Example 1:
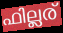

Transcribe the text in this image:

ഫില്ലര്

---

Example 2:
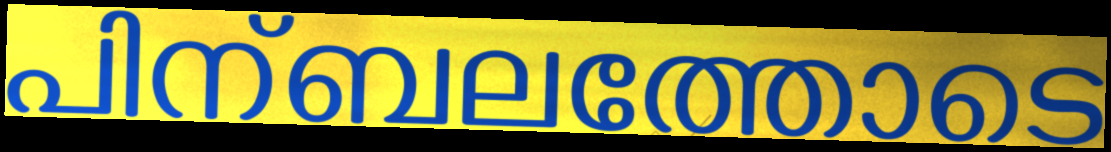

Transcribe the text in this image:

പിന്ബലത്തോടെ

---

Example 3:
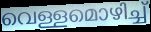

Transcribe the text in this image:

വെള്ളമൊഴിച്ച്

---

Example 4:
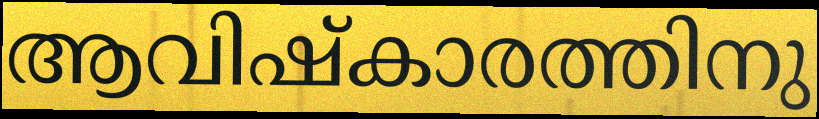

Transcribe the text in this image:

ആവിഷ്കാരത്തിനു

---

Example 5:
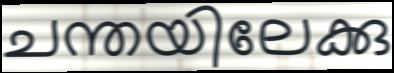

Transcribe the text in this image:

ചന്തയിലേക്കു